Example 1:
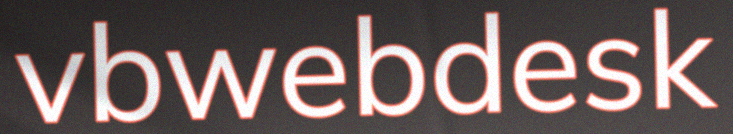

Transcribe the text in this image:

vbwebdesk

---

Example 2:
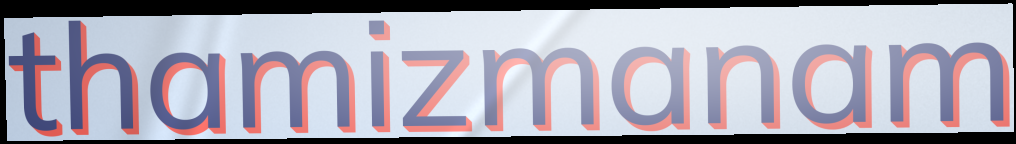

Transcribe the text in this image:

thamizmanam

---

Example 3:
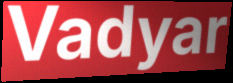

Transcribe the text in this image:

Vadyar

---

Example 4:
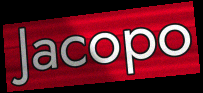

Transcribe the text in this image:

Jacopo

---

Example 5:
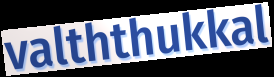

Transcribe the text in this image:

valththukkal